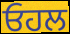
ਓਹਲ